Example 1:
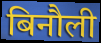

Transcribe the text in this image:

बिनौली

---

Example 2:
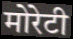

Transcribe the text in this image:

मोरेटी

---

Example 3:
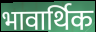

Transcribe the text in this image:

भावार्थिक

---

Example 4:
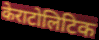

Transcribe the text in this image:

केराटोलिटिक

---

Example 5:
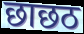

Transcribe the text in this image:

छाछठ